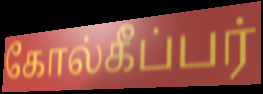
கோல்கீப்பர்